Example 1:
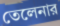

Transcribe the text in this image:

তেলেনার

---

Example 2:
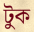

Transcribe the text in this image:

টুক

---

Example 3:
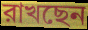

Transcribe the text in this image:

রাখছেন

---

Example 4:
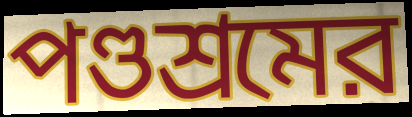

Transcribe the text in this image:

পণ্ডশ্রমের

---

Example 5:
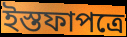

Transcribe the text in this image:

ইস্তফাপত্রে